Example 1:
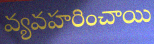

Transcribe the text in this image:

వ్యవహరించాయి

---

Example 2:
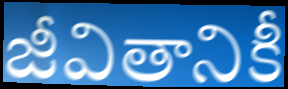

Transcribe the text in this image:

జీవితానికీ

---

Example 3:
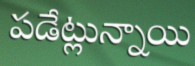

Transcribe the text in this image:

పడేట్లున్నాయి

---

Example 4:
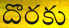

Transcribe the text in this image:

దొరకు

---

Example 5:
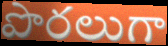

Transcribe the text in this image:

పొరలుగా